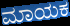
ಮಾಯಕ